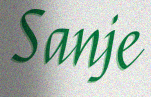
Sanje